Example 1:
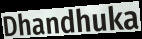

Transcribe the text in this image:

Dhandhuka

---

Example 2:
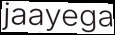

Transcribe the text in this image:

jaayega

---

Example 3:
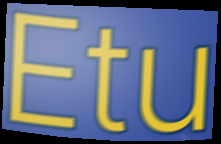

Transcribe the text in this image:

Etu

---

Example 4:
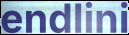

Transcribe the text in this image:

endlini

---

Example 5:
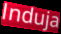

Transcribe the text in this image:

Induja